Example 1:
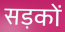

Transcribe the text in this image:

सड़कों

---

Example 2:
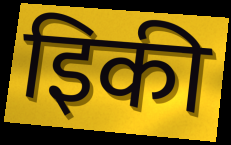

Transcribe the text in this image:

इिकी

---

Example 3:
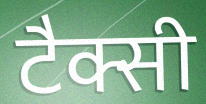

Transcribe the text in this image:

टैक्सी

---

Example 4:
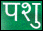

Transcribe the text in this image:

पशु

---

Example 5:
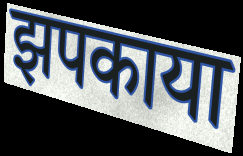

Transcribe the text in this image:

झपकाया